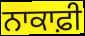
ਨਾਕਾਫ਼ੀ